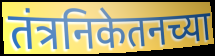
तंत्रनिकेतनच्या